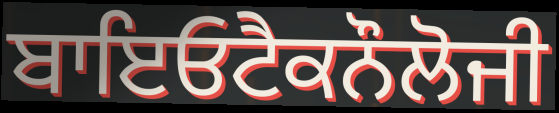
ਬਾਇਓਟੈਕਨੌਲੋਜੀ